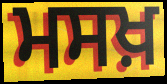
ਮਸਖ਼